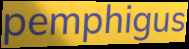
pemphigus